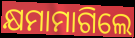
କ୍ଷମାମାଗିଲେ